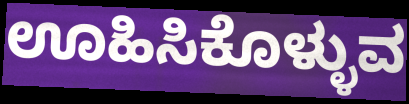
ಊಹಿಸಿಕೊಳ್ಳುವ